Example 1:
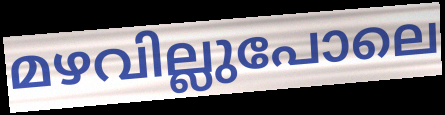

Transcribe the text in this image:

മഴവില്ലുപോലെ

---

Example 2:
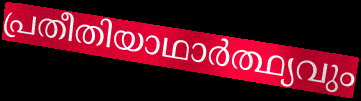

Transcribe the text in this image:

പ്രതീതിയാഥാർത്ഥ്യവും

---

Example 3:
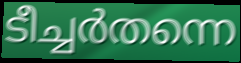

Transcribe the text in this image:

ടീച്ചർതന്നെ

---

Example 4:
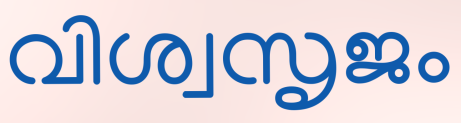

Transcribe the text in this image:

വിശ്വസൃജം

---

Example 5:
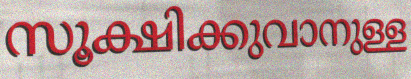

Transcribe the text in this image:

സൂക്ഷിക്കുവാനുള്ള